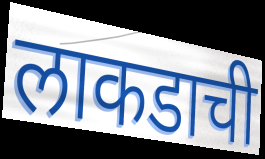
लाकडाची